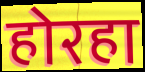
होरहा